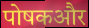
पोषकऔर